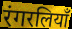
रंगरलियाँ